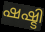
ഷഷ്ടി